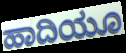
ಹಾದಿಯೂ